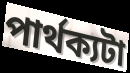
পার্থক্যটা